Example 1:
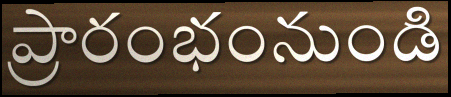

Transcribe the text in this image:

ప్రారంభంనుండి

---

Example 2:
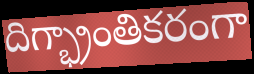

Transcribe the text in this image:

దిగ్భ్రాంతికరంగా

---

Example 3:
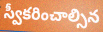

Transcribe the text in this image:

స్వీకరించాల్సిన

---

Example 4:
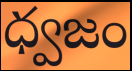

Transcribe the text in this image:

ధ్వజం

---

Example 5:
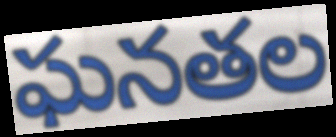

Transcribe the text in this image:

ఘనతల